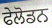
ਫੇਲੋਡਨ